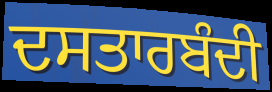
ਦਸਤਾਰਬੰਦੀ